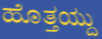
ಹೊತ್ತಯ್ದು